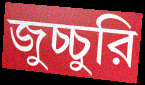
জুচ্চুরি